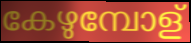
കേഴുമ്പോള്